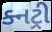
ક્નટ્રી